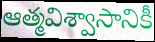
ఆత్మవిశ్వాసానికీ